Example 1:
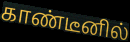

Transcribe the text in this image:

காண்டீனில்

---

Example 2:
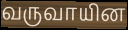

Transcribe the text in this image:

வருவாயின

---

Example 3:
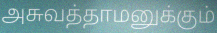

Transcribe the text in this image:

அசுவத்தாமனுக்கும்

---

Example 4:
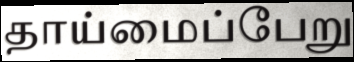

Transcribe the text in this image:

தாய்மைப்பேறு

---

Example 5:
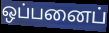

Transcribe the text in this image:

ஒப்பனைப்